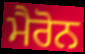
ਮੈਰੋਨ